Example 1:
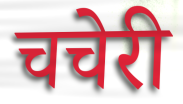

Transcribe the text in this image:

चचेरी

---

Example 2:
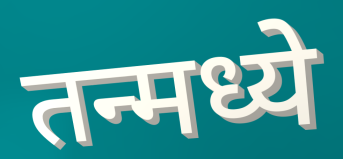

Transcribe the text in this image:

तन्मध्ये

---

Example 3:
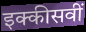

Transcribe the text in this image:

इक्‍कीसवीं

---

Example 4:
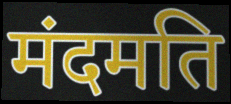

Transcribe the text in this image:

मंदमति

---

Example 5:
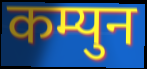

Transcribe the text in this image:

कम्युन